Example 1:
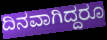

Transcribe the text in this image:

ದಿನವಾಗಿದ್ದರೂ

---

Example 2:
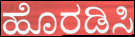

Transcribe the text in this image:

ಹೊರಡಿಸಿ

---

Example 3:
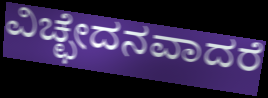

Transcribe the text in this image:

ವಿಚ್ಛೇದನವಾದರೆ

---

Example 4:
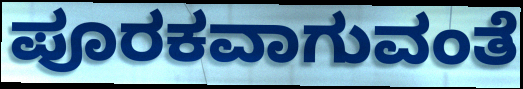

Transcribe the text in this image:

ಪೂರಕವಾಗುವಂತೆ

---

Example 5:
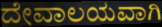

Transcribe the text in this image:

ದೇವಾಲಯವಾಗಿ